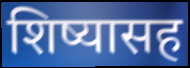
शिष्यासह